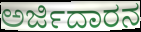
ಅರ್ಜಿದಾರನ